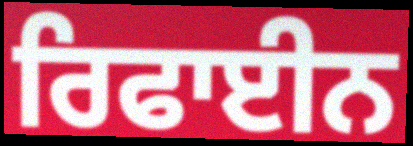
ਰਿਫਾਈਨ